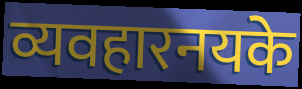
व्यवहारनयके